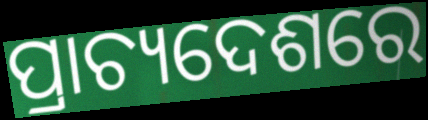
ପ୍ରାଚ୍ୟଦେଶରେ